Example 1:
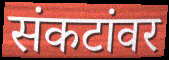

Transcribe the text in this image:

संकटांवर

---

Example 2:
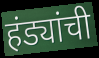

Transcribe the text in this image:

हंड्यांची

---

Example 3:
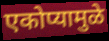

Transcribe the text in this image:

एकोप्यामुळे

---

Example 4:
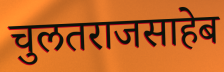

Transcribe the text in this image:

चुलतराजसाहेब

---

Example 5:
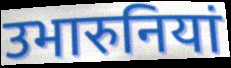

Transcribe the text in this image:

उभारुनियां